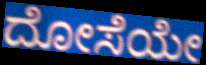
ದೋಸೆಯೇ